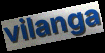
vilanga